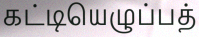
கட்டியெழுப்பத்